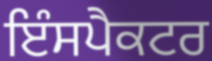
ਇੰਸਪੈਕਟਰ